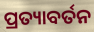
ପ୍ରତ୍ୟାବର୍ତନ